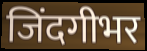
जिंदगीभर